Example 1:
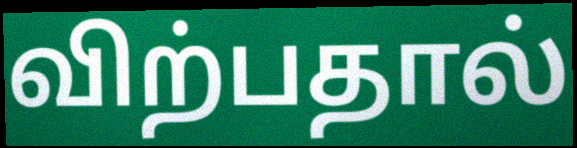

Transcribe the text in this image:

விற்பதால்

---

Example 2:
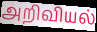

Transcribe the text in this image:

அறிவியல்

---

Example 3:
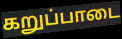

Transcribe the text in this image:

கறுப்பாடை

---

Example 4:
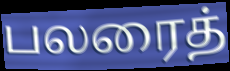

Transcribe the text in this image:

பலரைத்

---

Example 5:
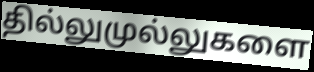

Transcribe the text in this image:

தில்லுமுல்லுகளை